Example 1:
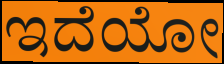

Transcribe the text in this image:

ಇದೆಯೋ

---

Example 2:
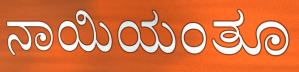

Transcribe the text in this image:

ನಾಯಿಯಂತೂ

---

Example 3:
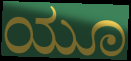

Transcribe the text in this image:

ಯೂ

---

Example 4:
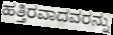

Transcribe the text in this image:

ಹತ್ತಿರವಾದವರನ್ನು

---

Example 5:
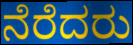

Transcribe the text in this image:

ನೆರೆದರು